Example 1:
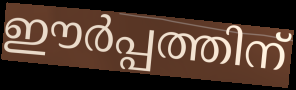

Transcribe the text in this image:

ഈർപ്പത്തിന്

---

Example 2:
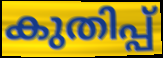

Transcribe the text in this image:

കുതിപ്പ്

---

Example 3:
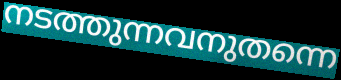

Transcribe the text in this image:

നടത്തുന്നവനുതന്നെ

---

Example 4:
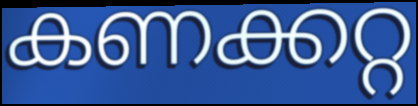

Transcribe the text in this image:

കണക്കറ്റ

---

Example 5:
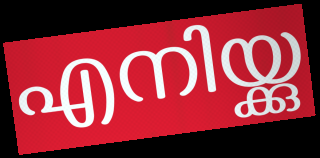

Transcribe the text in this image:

എനിയ്ക്കു